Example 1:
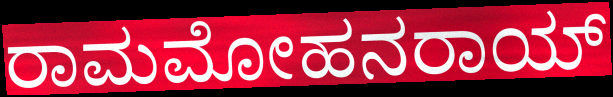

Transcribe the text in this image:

ರಾಮಮೋಹನರಾಯ್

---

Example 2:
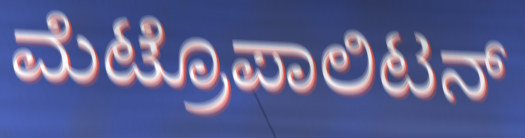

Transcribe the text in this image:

ಮೆಟ್ರೊಪಾಲಿಟನ್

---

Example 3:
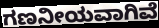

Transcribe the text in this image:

ಗಣನೀಯವಾಗಿವೆ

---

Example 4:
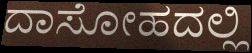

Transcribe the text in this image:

ದಾಸೋಹದಲ್ಲಿ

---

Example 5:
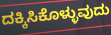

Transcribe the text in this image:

ದಕ್ಕಿಸಿಕೊಳ್ಳುವುದು